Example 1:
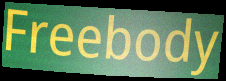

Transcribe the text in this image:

Freebody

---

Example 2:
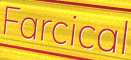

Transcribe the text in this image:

Farcical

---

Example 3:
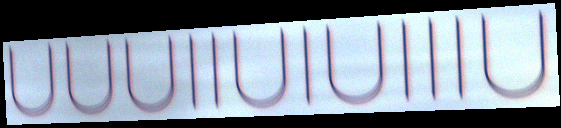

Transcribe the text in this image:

UUUIIUIUIIIU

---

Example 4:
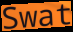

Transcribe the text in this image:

Swat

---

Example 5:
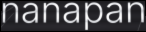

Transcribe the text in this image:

nanapan